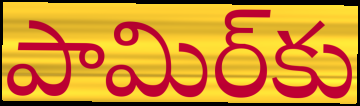
పామిర్‌కు